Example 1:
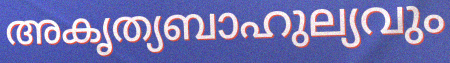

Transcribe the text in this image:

അകൃത്യബാഹുല്യവും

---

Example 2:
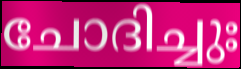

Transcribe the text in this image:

ചോദിച്ചുഃ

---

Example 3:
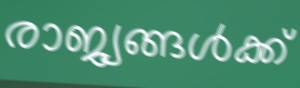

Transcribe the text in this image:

രാജ്യങ്ങൾക്ക്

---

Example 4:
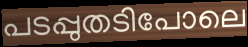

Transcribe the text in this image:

പടപ്പുതടിപോലെ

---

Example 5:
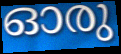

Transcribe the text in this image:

ഓരു